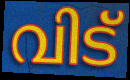
വിട്